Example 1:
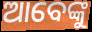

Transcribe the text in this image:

ଆବେଙ୍କୁ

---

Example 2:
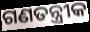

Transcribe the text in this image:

ଗଣତନ୍ତ୍ରୀକ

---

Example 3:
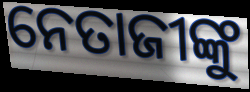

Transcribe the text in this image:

ନେତାଜୀଙ୍କୁ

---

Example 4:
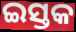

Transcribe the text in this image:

ଇସ୍ତକ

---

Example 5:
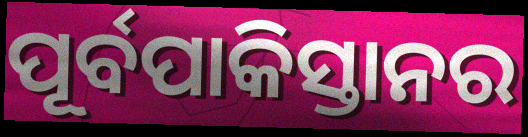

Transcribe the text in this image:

ପୂର୍ବପାକିସ୍ତାନର